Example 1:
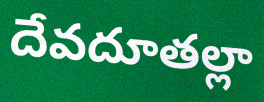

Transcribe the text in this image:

దేవదూతల్లా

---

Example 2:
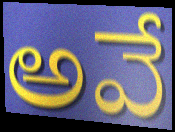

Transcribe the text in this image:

అవే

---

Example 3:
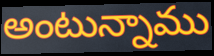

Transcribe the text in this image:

అంటున్నాము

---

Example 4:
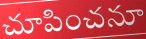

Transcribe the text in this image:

చూపించనూ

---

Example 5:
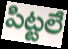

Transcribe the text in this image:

పిట్టలే